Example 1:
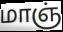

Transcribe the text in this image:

மாஞ்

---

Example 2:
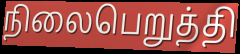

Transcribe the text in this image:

நிலைபெறுத்தி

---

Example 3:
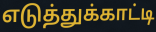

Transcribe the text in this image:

எடுத்துக்காட்டி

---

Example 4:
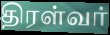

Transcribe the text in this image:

திரள்வர்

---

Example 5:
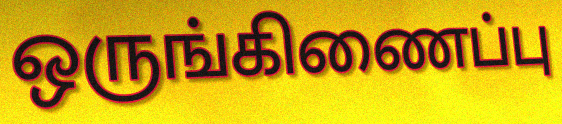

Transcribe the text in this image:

ஒருங்கிணைப்பு